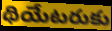
థియేటరుకు